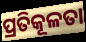
ପ୍ରତିକୂଳତା